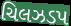
ચિલઝડપ